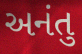
અનંતુ